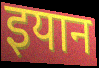
इयान